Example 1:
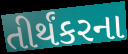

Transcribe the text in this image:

તીર્થંકરના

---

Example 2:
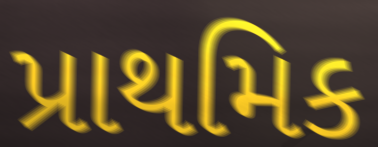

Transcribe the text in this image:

પ્રાથમિક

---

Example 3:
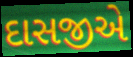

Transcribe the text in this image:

દાસજીએ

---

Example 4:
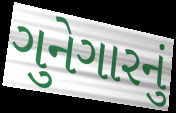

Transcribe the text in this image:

ગુનેગારનું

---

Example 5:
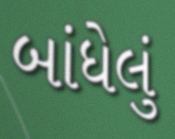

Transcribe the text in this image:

બાંધેલું